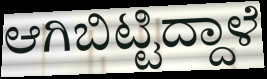
ಆಗಿಬಿಟ್ಟಿದ್ದಾಳೆ